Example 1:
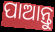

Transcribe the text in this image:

ପାଆନ୍ତୁ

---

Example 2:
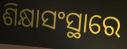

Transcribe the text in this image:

ଶିକ୍ଷାସଂସ୍ଥାରେ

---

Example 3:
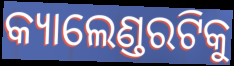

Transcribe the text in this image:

କ୍ୟାଲେଣ୍ଡରଟିକୁ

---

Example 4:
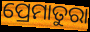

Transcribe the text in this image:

ପ୍ରେମାତୁରା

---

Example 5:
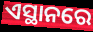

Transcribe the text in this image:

ଏସ୍ଥାନରେ